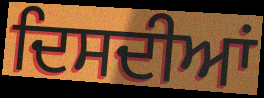
ਦਿਸਦੀਆਂ